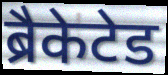
ब्रैकेटेड